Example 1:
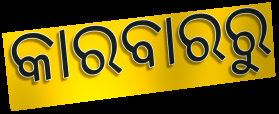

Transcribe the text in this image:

କାରବାରରୁ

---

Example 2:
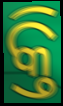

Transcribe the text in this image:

କ୍ତି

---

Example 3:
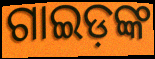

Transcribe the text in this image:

ଗାଇଡ଼ଙ୍କ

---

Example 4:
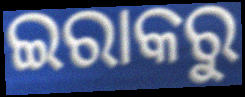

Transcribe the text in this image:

ଇରାକରୁ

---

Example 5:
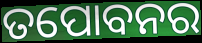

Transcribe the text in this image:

ତପୋବନର